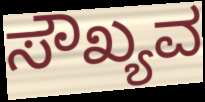
ಸೌಖ್ಯವ